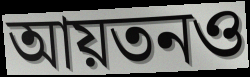
আয়তনও